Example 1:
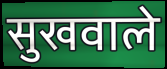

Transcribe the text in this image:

सुखवाले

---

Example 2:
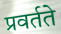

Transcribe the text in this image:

प्रवर्तते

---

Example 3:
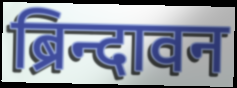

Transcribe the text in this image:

ब्रिन्दावन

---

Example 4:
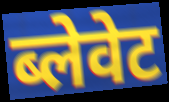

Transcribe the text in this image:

ब्लेवेट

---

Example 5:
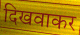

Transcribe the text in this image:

दिखवाकर